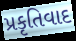
પ્રકૃતિવાદ